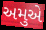
અમુએ